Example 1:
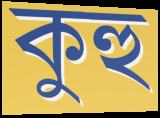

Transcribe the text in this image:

কুহু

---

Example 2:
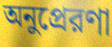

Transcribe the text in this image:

অনুপ্রেরণা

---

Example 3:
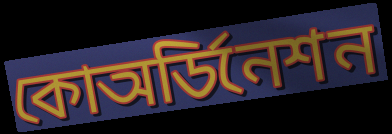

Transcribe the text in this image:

কোঅর্ডিনেশন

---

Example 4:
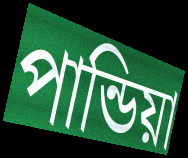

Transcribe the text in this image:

পান্ডিয়া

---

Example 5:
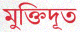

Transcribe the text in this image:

মুক্তিদূত